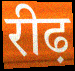
रीढ़